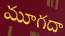
మూగదా